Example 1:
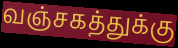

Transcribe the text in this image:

வஞ்சகத்துக்கு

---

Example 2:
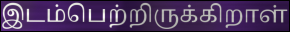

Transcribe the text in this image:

இடம்பெற்றிருக்கிறாள்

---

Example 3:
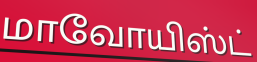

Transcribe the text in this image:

மாவோயிஸ்ட்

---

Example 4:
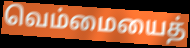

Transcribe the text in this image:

வெம்மையைத்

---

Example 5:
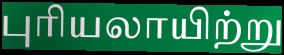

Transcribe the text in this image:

புரியலாயிற்று